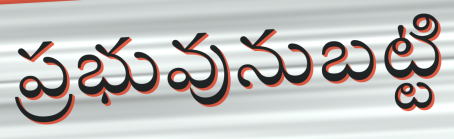
ప్రభువునుబట్టి